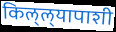
किल्ल्यापाशी